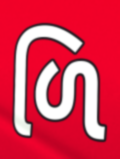
ળિ